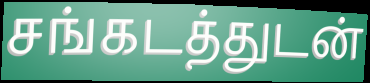
சங்கடத்துடன்